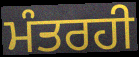
ਮੰਤਰਹੀ